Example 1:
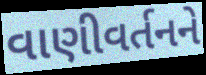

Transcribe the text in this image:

વાણીવર્તનને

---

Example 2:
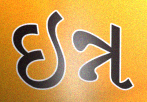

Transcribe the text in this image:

ઇન્ન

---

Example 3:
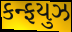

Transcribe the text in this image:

કન્ફયુઝ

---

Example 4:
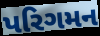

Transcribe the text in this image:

પરિગમન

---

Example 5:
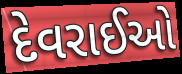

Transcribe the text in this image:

દેવરાઈઓ